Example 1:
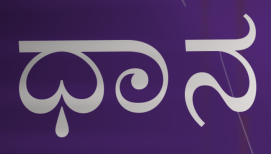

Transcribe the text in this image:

ಧಾನ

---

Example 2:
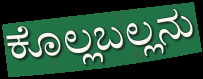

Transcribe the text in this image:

ಕೊಲ್ಲಬಲ್ಲನು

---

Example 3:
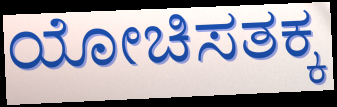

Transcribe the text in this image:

ಯೋಚಿಸತಕ್ಕ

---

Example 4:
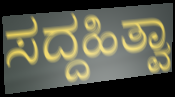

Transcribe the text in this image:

ಸದ್ದಹಿತ್ವಾ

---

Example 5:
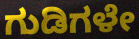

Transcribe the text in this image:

ಗುಡಿಗಳೇ